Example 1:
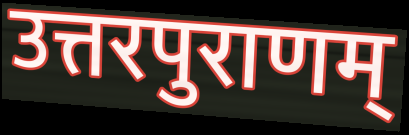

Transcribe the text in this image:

उत्तरपुराणम्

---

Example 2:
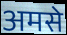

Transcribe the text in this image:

अमसे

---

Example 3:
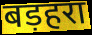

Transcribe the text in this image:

बड़हरा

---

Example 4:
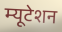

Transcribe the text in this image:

म्यूटेशन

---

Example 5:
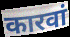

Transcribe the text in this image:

कारवां